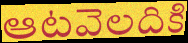
ఆటవెలదికి